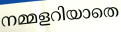
നമ്മളറിയാതെ